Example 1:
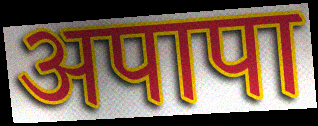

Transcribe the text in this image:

अपापा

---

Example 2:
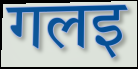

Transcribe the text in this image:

गलइ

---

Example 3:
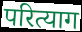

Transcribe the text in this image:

परित्याग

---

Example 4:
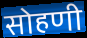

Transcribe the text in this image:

सोहणी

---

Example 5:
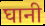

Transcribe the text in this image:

घानी